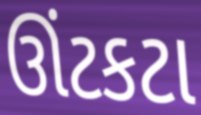
ઊંટકટા